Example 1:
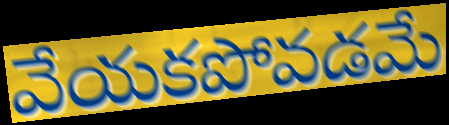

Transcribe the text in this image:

వేయకపోవడమే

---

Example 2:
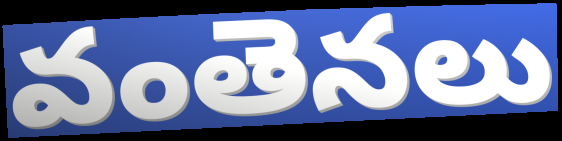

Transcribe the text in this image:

వంతెనలు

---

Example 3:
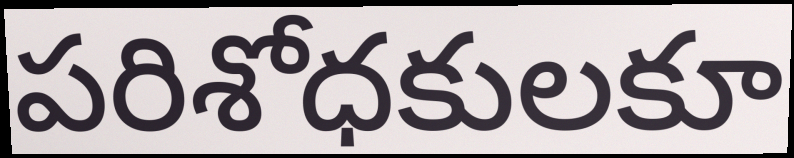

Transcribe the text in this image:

పరిశోధకులకూ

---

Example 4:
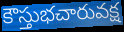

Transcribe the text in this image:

కౌస్తుభచారువక్ష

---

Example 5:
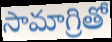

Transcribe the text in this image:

సామాగ్రితో